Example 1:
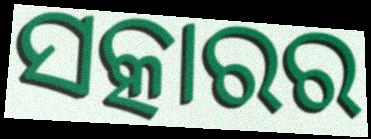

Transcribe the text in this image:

ସତ୍କାରର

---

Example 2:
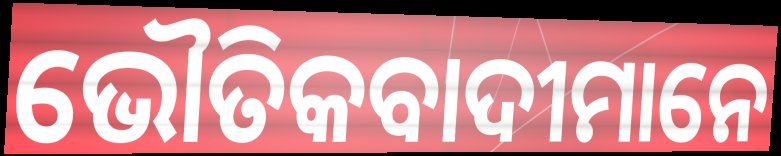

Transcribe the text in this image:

ଭୌତିକବାଦୀମାନେ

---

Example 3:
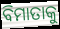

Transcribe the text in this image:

ବିମାତାକୁ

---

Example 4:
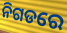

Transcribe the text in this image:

ନିଗଡରେ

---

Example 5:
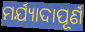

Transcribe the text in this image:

ମର୍ଯ୍ୟାଦାପୂର୍ଣ